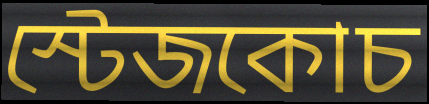
স্টেজকোচ